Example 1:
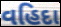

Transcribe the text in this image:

વહિદા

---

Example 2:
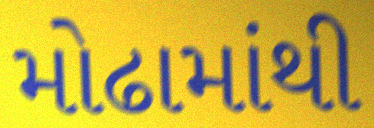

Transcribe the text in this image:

મોઢામાંથી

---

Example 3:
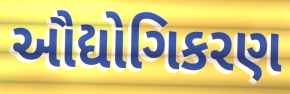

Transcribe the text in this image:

ઔદ્યોગિકરણ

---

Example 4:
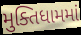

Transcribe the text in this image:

મુક્તિધામમાં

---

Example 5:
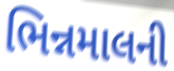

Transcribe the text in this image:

ભિન્નમાલની